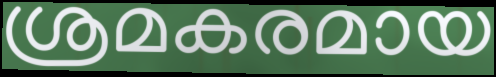
ശ്രമകരമായ